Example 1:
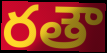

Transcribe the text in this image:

రతౌ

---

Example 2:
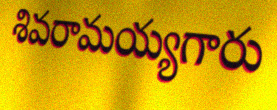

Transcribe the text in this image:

శివరామయ్యగారు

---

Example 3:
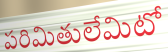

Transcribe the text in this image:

పరిమితులేమిటో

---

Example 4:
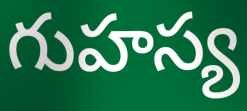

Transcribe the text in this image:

గుహస్య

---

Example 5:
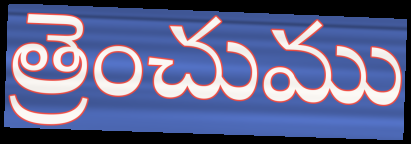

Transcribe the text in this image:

త్రెంచుము